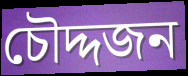
চৌদ্দজন